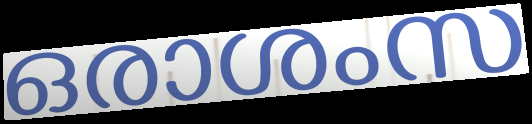
ഒരാശംസ